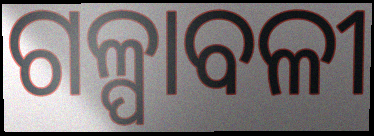
ଗଳ୍ପାବଳୀ